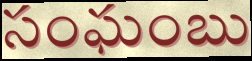
సంఘంబు